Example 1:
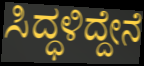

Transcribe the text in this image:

ಸಿದ್ಧಳಿದ್ದೇನೆ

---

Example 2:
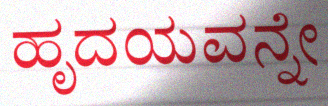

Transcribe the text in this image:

ಹೃದಯವನ್ನೇ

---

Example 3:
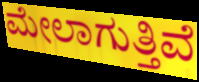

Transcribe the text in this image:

ಮೇಲಾಗುತ್ತಿವೆ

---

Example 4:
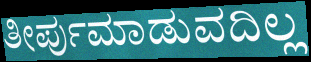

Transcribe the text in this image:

ತೀರ್ಪುಮಾಡುವದಿಲ್ಲ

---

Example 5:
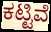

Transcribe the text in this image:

ಕಟ್ಟಿವೆ